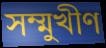
সম্মুখীণ